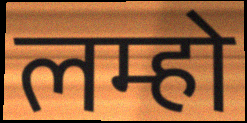
लम्हो